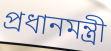
প্ৰধানমন্ত্ৰী